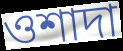
ওশাদা